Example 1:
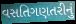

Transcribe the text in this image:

વસતિગણતરીનું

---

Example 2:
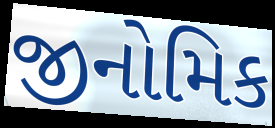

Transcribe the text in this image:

જીનોમિક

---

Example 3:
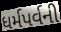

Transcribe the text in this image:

ધર્મપર્વની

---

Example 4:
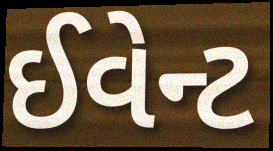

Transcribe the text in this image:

ઈવેન્ટ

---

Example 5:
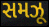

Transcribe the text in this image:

સમઝૂ